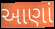
આણાં